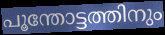
പൂന്തോട്ടത്തിനും